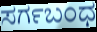
ಸರ್ಗಬಂಧ